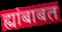
ह्यांबाबत